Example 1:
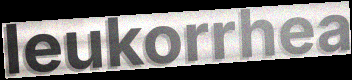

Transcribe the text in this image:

leukorrhea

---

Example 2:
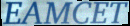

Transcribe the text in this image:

EAMCET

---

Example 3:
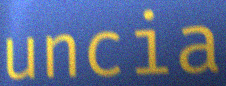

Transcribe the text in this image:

uncia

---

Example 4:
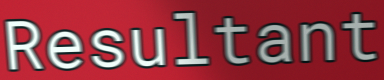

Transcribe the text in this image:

Resultant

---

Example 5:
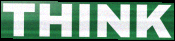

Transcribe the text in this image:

THINK